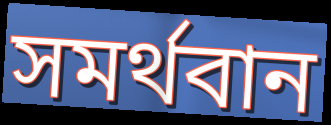
সমর্থবান